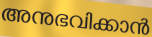
അനുഭവിക്കാൻ